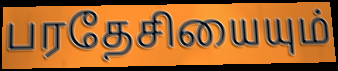
பரதேசியையும்